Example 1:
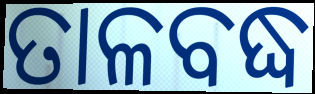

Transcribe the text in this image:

ତାଳବଦ୍ଧ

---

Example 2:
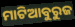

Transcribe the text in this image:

ମାଟିଆବୁରୁଜ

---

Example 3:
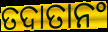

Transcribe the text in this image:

ତଦାତାନଂ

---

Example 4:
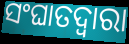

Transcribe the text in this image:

ସଂଘାତଦ୍ୱାରା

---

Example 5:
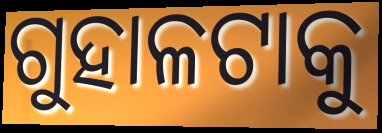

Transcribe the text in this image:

ଗୁହାଳଟାକୁ